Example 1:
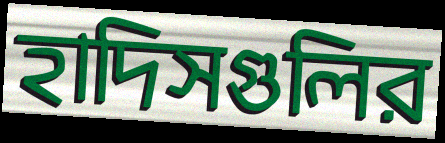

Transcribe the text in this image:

হাদিসগুলির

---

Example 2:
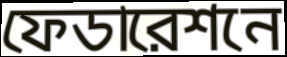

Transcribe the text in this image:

ফেডারেশনে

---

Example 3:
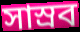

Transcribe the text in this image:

সাস্রব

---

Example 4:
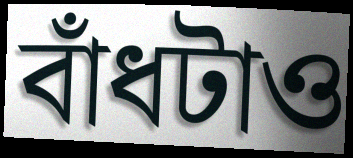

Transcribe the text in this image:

বাঁধটাও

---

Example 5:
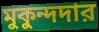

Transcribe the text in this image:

মুকুন্দদার